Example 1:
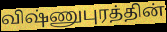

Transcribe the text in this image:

விஷ்ணுபுரத்தின்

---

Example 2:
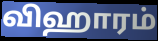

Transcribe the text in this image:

விஹாரம்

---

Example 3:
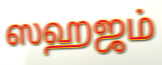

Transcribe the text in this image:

ஸஹஜம்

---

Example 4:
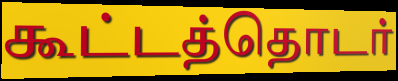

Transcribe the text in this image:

கூட்டத்தொடர்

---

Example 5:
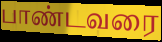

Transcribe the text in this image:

பாண்டவரை